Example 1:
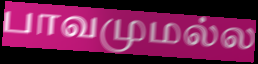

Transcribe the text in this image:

பாவமுமல்ல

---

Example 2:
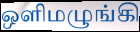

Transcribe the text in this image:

ஒளிமழுங்கி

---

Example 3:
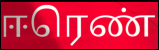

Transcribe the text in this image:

ஈரெண்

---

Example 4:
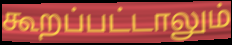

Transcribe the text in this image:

கூறப்பட்டாலும்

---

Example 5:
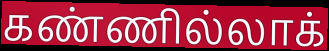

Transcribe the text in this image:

கண்ணில்லாக்